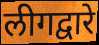
लीगद्वारे